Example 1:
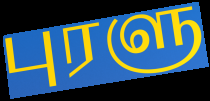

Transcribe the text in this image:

புரளு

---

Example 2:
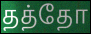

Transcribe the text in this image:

தத்தோ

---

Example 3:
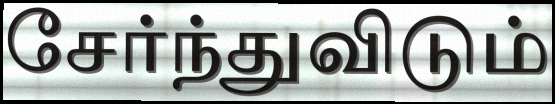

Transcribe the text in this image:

சேர்ந்துவிடும்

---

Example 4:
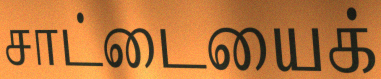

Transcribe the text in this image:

சாட்டையைக்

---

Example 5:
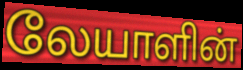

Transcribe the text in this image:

லேயாளின்